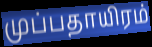
முப்பதாயிரம்